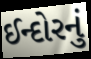
ઈન્દોરનું